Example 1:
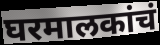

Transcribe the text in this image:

घरमालकांचं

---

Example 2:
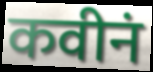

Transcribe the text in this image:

कवीनं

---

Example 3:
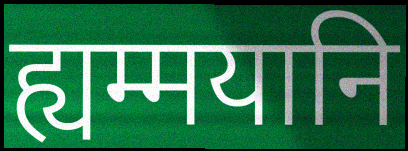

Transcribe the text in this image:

ह्यम्मयानि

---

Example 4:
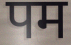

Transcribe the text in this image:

पम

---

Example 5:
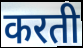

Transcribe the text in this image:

करती